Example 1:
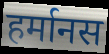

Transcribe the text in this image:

हर्मानस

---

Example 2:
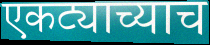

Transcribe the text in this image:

एकट्याच्याच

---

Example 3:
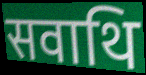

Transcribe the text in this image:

सवाथि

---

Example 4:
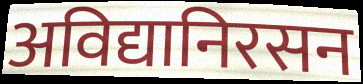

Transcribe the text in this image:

अविद्यानिरसन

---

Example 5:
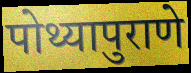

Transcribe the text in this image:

पोथ्यापुराणे